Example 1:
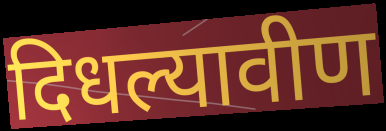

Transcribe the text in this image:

दिधल्यावीण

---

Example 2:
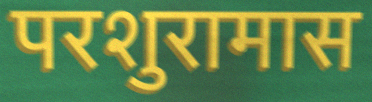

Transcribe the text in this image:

परशुरामास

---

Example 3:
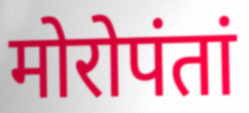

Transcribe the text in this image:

मोरोपंतां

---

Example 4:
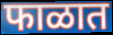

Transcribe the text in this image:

फाळात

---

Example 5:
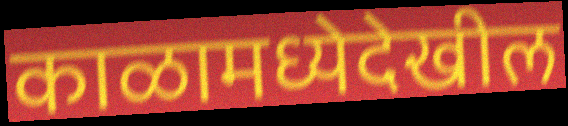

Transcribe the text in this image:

काळामध्येदेखील